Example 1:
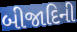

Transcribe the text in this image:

બીજાદિની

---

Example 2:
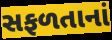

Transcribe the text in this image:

સફળતાનાં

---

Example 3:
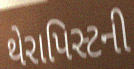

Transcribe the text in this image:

થેરાપિસ્ટની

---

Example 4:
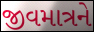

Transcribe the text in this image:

જીવમાત્રને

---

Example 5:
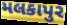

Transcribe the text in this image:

મલકાપુર